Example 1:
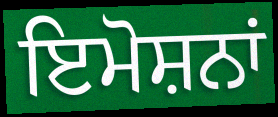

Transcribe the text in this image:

ਇਮੋਸ਼ਨਾਂ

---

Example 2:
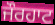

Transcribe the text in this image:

ਜੌਰਹਾਟ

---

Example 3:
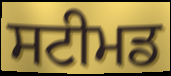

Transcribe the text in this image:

ਸਟੀਮਡ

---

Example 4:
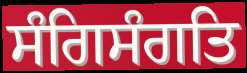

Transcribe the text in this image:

ਸੰਗਿਸੰਗਤਿ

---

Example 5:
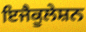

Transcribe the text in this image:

ਇਜੈਕੂਲੇਸ਼ਨ